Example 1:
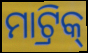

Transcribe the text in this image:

ମାଟ୍ରିକ୍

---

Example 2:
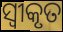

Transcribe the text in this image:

ସ୍ବୀକୃତ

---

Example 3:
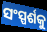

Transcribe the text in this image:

ସଂସ୍ପର୍ଶକୁ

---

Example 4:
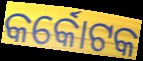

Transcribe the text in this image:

କର୍କୋଟକ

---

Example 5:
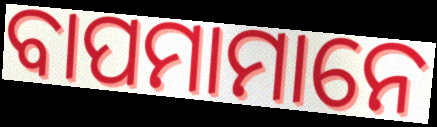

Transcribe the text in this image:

ବାପମାମାନେ